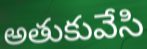
అతుకువేసి